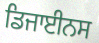
ਡਿਜਾਈਨਸ